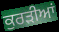
ਕੁਰੜੀਆਂ